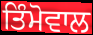
ਤਿੰਮੋਵਾਲ